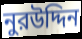
নুরউদ্দিন